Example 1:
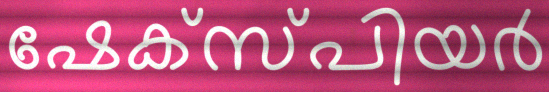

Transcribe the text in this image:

ഷേക്സ്പിയർ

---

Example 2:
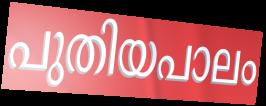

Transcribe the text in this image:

പുതിയപാലം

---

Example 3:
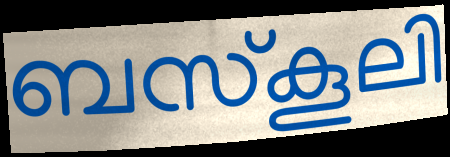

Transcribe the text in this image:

ബസ്കൂലി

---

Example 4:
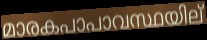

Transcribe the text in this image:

മാരകപാപാവസ്ഥയില്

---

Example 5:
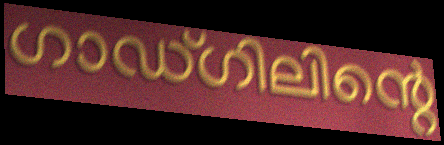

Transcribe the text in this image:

ഗാഡ്ഗിലിന്റെ